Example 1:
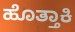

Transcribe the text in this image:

ಹೊತ್ತಾಕಿ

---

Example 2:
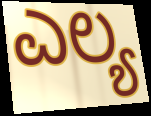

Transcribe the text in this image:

ಎಲ್ಯ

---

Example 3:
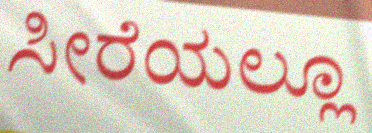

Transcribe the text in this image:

ಸೀರೆಯಲ್ಲೂ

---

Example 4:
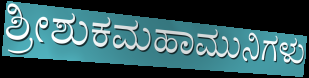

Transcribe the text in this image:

ಶ್ರೀಶುಕಮಹಾಮುನಿಗಳು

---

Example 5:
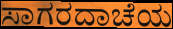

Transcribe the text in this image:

ಸಾಗರದಾಚೆಯ